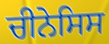
ਚੀਨੇਸਿਸ